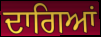
ਦਾਗਿਆਂ